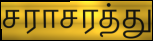
சராசரத்து